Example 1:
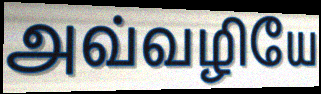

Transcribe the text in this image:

அவ்வழியே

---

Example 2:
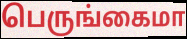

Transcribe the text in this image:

பெருங்கைமா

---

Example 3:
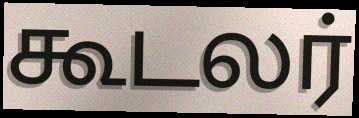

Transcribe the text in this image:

கூடலர்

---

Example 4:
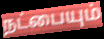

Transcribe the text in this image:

நட்பையும்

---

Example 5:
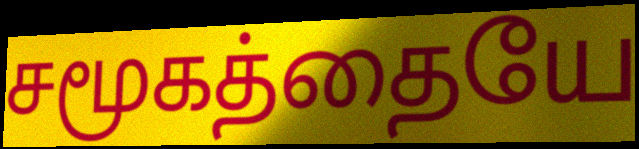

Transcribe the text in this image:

சமூகத்தையே